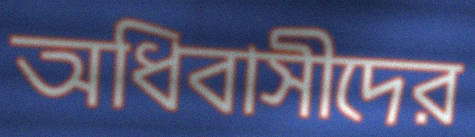
অধিবাসীদের